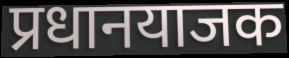
प्रधानयाजक